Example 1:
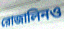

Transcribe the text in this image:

রোজালিনও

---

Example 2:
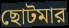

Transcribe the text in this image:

ছোটমার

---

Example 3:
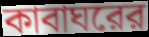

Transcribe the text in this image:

কাবাঘরের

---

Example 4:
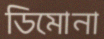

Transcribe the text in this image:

ডিমোনা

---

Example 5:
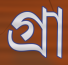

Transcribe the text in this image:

গ্রা